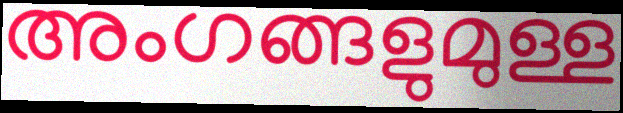
അംഗങ്ങളുമുള്ള